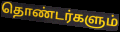
தொண்டர்களும்